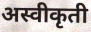
अस्वीकृती